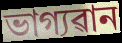
ভাগ্যৱান